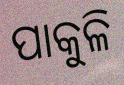
ପାକୁଳି